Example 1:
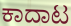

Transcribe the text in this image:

ಕಾದಾಟ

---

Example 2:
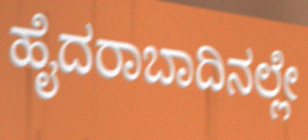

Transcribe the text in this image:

ಹೈದರಾಬಾದಿನಲ್ಲೇ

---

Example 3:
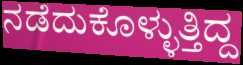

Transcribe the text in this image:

ನಡೆದುಕೊಳ್ಳುತ್ತಿದ್ದ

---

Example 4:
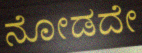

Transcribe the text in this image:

ನೋಡದೇ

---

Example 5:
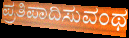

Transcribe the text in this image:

ಪ್ರತಿಪಾದಿಸುವಂಥ